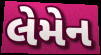
લેમેન